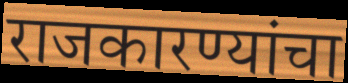
राजकारण्यांचा